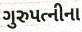
ગુરુપત્નીના